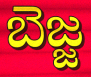
బెజ్జ